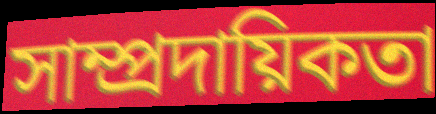
সাম্প্ৰদায়িকতা